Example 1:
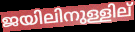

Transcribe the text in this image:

ജയിലിനുള്ളില്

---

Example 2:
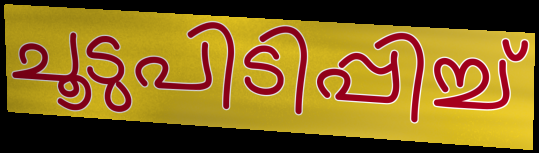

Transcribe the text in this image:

ചൂടുപിടിപ്പിച്ച്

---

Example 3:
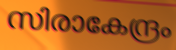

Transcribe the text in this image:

സിരാകേന്ദ്രം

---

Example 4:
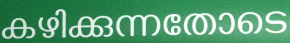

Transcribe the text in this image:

കഴിക്കുന്നതോടെ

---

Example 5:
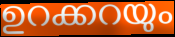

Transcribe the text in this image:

ഉറക്കറയും